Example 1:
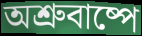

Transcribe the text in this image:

অশ্রুবাষ্পে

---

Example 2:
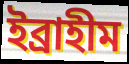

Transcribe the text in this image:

ইব্রাহীম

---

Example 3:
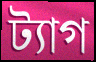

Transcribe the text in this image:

ট্যাগ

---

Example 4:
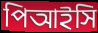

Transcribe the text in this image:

পিআইসি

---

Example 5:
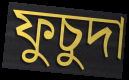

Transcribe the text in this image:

ফুচুদা